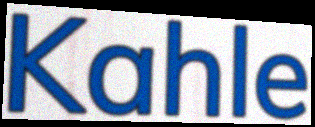
Kahle